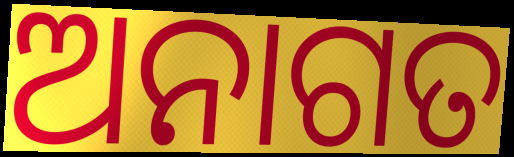
ଅନାଗତ